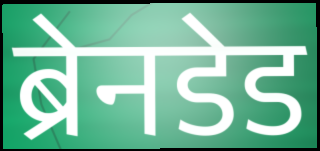
ब्रेनडेड